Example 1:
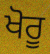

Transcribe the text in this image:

ਖੋਰੂ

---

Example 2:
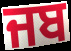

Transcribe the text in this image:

ਜਬ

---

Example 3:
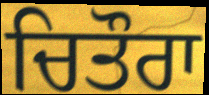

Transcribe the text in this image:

ਚਿਤੌਰਾ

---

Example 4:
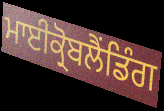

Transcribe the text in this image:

ਮਾਈਕ੍ਰੋਬਲੈਂਡਿੰਗ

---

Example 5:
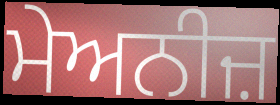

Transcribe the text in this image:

ਮੇਅਨੀਜ਼